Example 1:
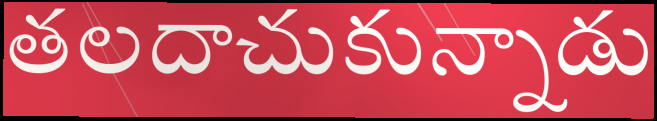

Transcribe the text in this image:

తలదాచుకున్నాడు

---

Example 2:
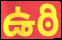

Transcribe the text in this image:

ఉఠి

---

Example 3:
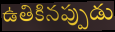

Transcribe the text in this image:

ఉతికినప్పుడు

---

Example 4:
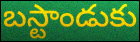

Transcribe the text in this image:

బస్టాండుకు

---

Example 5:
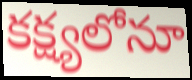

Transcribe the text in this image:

కక్ష్యలోనూ